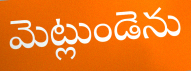
మెట్లుండెను